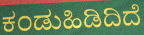
ಕಂಡುಹಿಡಿದಿದೆ